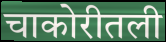
चाकोरीतली